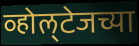
व्होल्टेजच्या